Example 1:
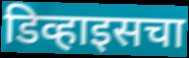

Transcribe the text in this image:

डिव्हाइसचा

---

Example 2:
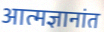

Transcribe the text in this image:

आत्मज्ञानांत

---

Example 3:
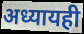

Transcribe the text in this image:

अध्यायही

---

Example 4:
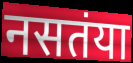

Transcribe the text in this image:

नसतंया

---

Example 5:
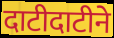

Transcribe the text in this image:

दाटीदाटीने